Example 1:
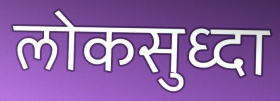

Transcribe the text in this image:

लोकसुध्दा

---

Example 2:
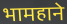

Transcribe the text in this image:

भामहाने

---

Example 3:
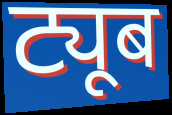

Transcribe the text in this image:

ट्यूब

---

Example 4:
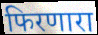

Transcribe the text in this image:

फिरणारा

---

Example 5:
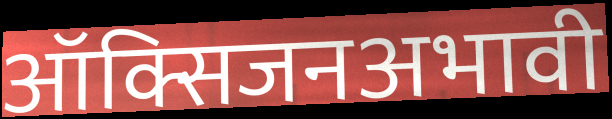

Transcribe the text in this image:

ऑक्सिजनअभावी